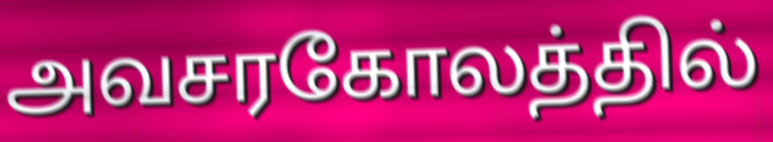
அவசரகோலத்தில்